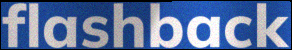
flashback